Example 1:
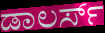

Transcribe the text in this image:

ಡಾಲರ್ಸ್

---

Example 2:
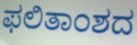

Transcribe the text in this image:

ಫಲಿತಾಂಶದ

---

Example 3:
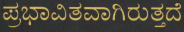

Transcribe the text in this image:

ಪ್ರಭಾವಿತವಾಗಿರುತ್ತದೆ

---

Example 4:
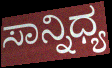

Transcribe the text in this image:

ಸಾನ್ನಿಧ್ಯ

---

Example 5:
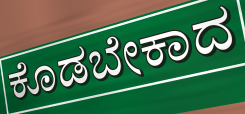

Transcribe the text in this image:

ಕೊಡಬೇಕಾದ